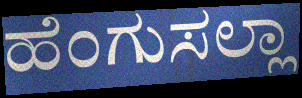
ಹೆಂಗುಸಲ್ಲಾ